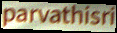
parvathisri